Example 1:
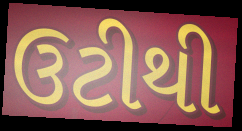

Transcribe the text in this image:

ઉટીથી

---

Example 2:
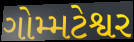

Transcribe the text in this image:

ગોમ્મટેશ્વર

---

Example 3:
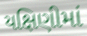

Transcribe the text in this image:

યક્ષિણીમાં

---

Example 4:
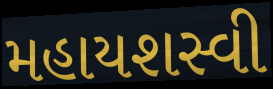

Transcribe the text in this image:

મહાયશસ્વી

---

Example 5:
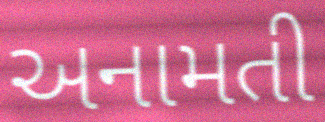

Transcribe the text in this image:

અનામતી